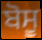
ਬੋਸੂ